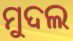
ମୁଦଲ